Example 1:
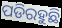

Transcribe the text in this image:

ପଡିରହୁଛି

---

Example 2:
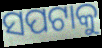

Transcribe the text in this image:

ସପଟାକୁ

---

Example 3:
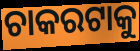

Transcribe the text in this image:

ଚାକରଟାକୁ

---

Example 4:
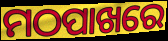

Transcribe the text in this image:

ମଠପାଖରେ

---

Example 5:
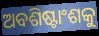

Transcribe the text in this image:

ଅବଶିଷ୍ଟାଂଶକୁ